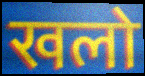
खलो